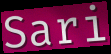
Sari